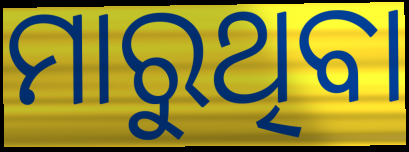
ମାରୁଥିବା